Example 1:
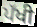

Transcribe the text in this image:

ਪੱਖੀ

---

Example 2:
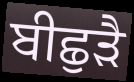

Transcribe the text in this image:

ਬੀਛੁੜੈ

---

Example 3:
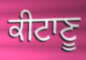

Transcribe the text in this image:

ਕੀਟਾਣੂ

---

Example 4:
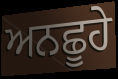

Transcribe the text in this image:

ਅਨਛੂਹੇ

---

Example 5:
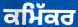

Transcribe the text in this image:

ਕਮਿੱਕਰ